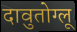
दावुतोग्लू